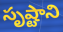
సృష్టాని